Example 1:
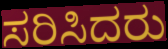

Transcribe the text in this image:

ಸರಿಸಿದರು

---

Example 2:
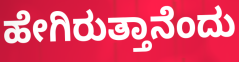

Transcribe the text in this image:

ಹೇಗಿರುತ್ತಾನೆಂದು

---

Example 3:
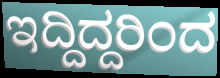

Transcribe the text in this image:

ಇದ್ದಿದ್ದರಿಂದ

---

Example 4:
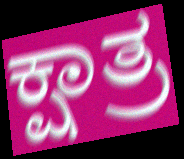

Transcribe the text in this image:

ಕ್ಷಾತ್ರ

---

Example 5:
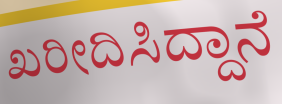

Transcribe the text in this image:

ಖರೀದಿಸಿದ್ದಾನೆ